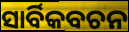
ସାର୍ବିକବଚନ